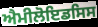
ਐਮੀਲੋਇਡਸਿਸ